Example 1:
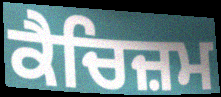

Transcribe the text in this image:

ਕੈਚਿਜ਼ਮ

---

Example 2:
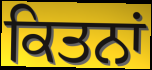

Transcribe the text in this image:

ਕਿਤਨਾਂ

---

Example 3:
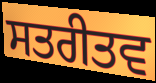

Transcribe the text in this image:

ਸਤਰੀਤਵ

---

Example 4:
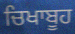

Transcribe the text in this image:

ਚਿਖਾਬੂਹ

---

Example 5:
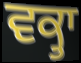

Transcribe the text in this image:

ਵਕ੍ਤਾ